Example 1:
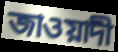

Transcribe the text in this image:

জাওয়াদী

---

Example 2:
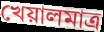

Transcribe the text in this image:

খেয়ালমাত্র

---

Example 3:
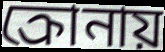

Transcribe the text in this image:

ক্রোনায়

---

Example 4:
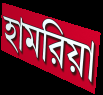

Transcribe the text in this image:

হামরিয়া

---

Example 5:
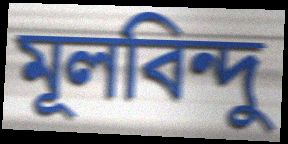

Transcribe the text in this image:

মূলবিন্দু